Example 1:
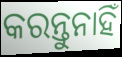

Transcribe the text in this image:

କରନ୍ତୁନାହିଁ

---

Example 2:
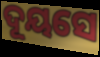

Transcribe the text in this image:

ଦୂୟସେ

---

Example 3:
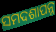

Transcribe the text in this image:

ସମଦଶାପନ୍ନ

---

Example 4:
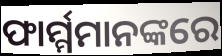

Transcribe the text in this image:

ଫାର୍ମ୍ମମାନଙ୍କରେ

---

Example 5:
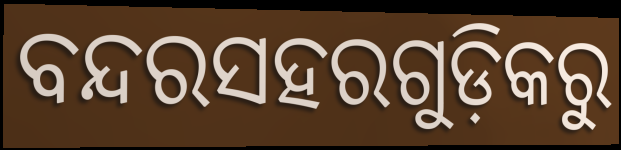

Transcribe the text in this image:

ବନ୍ଦରସହରଗୁଡ଼ିକରୁ